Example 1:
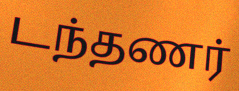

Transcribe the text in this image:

டந்தணர்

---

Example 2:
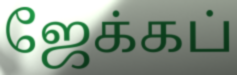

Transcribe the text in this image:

ஜேக்கப்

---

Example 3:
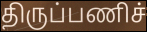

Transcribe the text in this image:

திருப்பணிச்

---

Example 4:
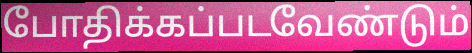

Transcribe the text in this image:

போதிக்கப்படவேண்டும்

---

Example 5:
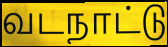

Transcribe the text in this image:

வடநாட்டு